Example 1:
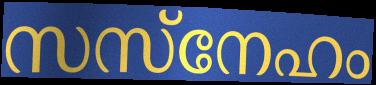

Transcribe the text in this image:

സസ്നേഹം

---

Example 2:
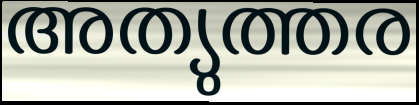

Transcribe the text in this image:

അത്യുത്തര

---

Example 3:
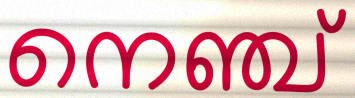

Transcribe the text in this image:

നെഞ്ച്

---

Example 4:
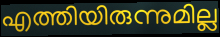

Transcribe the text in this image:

എത്തിയിരുന്നുമില്ല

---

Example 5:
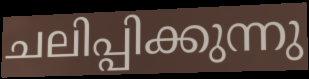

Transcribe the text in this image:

ചലിപ്പിക്കുന്നു